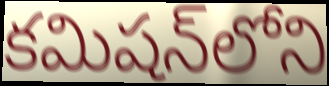
కమిషన్‌లోని